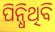
ପିନ୍ଧିଥିବି